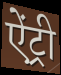
ऐंट्री